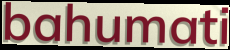
bahumati